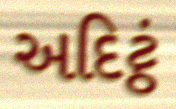
અદિટ્ઠં